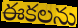
ఈకలను